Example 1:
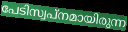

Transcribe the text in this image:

പേടിസ്വപ്നമായിരുന്ന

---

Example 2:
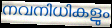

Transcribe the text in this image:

നവനിധികളും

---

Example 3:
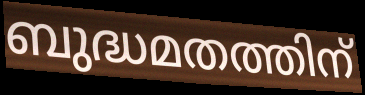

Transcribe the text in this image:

ബുദ്ധമതത്തിന്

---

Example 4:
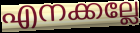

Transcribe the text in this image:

എനക്കല്ലേ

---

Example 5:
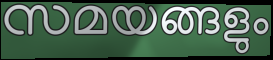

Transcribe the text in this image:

സമയങ്ങളും